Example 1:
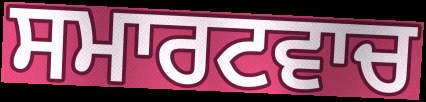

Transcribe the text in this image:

ਸਮਾਰਟਵਾਚ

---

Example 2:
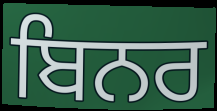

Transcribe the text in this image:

ਬਿਨਰ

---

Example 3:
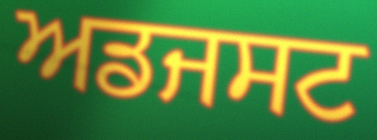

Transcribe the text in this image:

ਅਡਜਸਟ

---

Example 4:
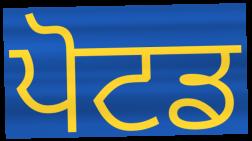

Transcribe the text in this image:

ਪੋਟਡ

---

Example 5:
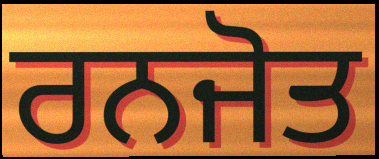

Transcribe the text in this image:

ਰਨਜੋਤ